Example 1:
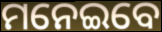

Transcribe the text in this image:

ମନେଇବେ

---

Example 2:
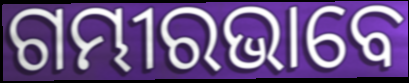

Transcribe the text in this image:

ଗମ୍ଭୀରଭାବେ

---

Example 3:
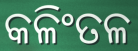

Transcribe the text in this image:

କଳିଂତଳ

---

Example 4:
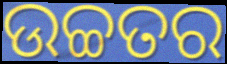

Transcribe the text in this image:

ଉଚ୍ଚତର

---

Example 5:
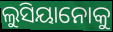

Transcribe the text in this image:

ଲୁସିୟାନୋକୁ